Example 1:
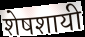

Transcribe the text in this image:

शेषशायी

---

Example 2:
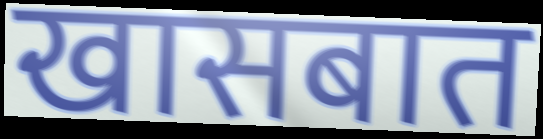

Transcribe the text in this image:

खासबात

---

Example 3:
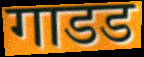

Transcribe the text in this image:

गाडड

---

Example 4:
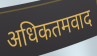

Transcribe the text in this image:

अधिकतमवाद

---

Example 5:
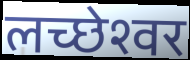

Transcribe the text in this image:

लच्छेश्वर